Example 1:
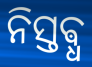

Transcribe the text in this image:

ନିସ୍ତଵ୍ଧ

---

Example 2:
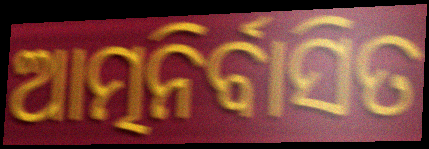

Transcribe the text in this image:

ଆତ୍ମନିର୍ବାସିତ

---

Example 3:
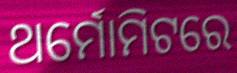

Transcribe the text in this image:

ଥର୍ମୋମିଟରେ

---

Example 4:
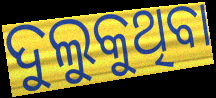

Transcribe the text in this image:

ଦୁଲୁକୁଥିବା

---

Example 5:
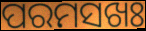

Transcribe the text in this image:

ପରମସଖଃ